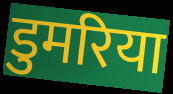
डुमरिया